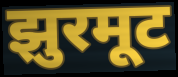
झुरमूट